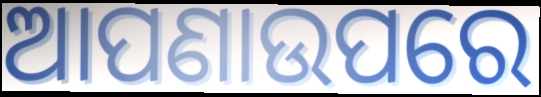
ଆପଣାଉପରେ